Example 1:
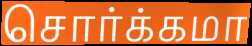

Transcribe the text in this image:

சொர்க்கமா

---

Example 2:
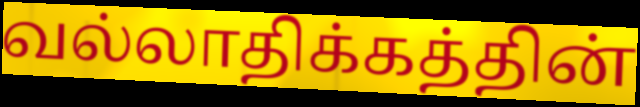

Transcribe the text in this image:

வல்லாதிக்கத்தின்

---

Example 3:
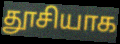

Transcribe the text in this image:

தூசியாக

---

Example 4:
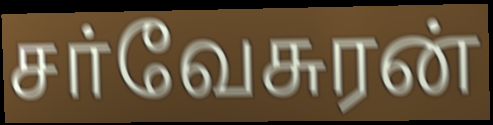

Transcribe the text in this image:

சர்வேசுரன்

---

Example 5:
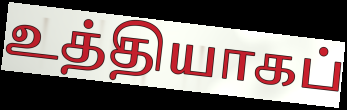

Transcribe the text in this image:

உத்தியாகப்